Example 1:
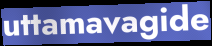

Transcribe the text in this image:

uttamavagide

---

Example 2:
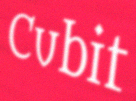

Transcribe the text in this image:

Cubit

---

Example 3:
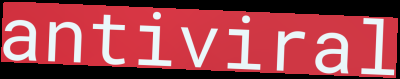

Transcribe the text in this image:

antiviral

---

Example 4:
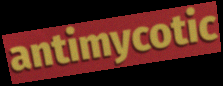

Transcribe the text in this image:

antimycotic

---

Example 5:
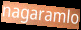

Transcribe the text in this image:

nagaramlo